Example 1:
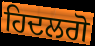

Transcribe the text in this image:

ਹਿਦਲਗੋ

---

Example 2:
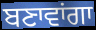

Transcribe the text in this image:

ਬਣਾਵਾਂਗਾ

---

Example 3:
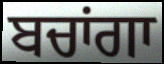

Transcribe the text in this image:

ਬਚਾਂਗਾ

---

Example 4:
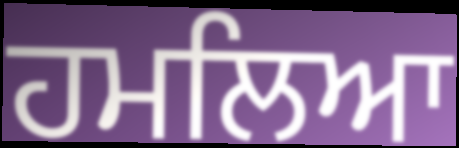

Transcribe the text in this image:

ਹਮਲਿਆ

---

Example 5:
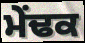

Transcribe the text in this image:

ਮੇਂਢਕ